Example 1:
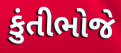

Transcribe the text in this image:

કુંતીભોજે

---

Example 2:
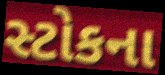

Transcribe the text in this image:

સ્ટોકના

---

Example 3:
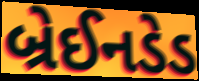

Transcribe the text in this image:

બ્રેઈનડેડ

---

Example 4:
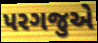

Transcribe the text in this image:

પરગજુએ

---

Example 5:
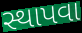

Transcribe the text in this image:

સ્થાપવા